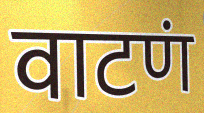
वाटणं